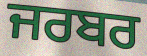
ਜਰਬਰ